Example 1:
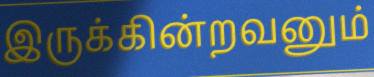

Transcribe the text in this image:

இருக்கின்றவனும்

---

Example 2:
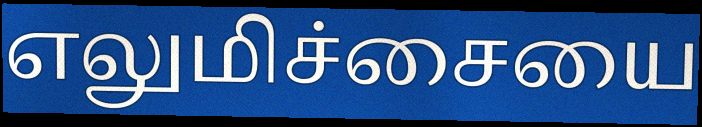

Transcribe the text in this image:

எலுமிச்சையை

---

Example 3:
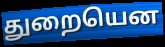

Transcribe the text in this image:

துறையென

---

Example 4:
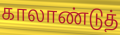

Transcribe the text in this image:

காலாண்டுத்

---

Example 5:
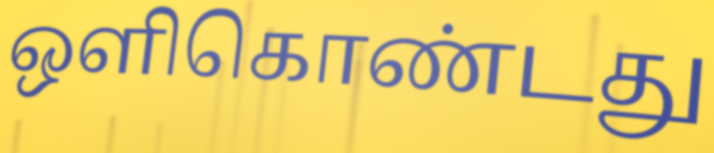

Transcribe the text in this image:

ஒளிகொண்டது